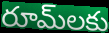
రూమ్‌లకు